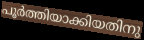
പൂർത്തിയാക്കിയതിനു